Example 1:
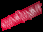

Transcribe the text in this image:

ஏற்கிறதா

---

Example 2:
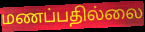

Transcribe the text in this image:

மணப்பதில்லை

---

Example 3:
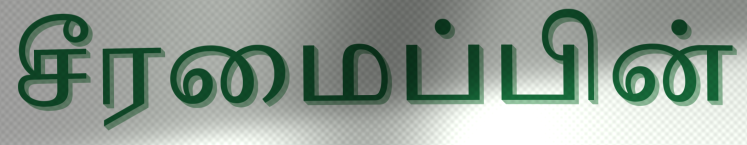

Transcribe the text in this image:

சீரமைப்பின்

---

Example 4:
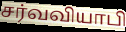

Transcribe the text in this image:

சர்வவியாபி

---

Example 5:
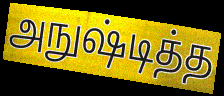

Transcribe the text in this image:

அநுஷ்டித்த